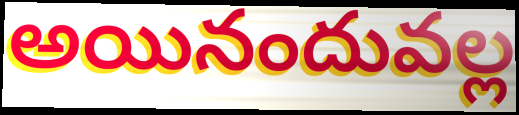
అయినందువల్ల